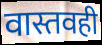
वास्तवही